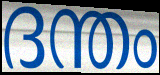
ദന്തം